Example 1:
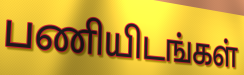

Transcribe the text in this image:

பணியிடங்கள்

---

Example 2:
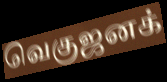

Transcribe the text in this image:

வெகுஜனக்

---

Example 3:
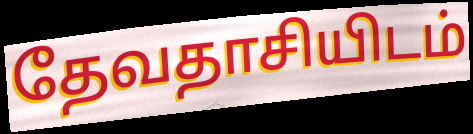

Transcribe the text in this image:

தேவதாசியிடம்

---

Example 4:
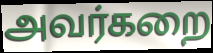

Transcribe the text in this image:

அவர்கறை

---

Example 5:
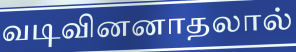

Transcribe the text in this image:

வடிவினனாதலால்